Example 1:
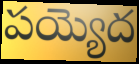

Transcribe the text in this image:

పయ్యెద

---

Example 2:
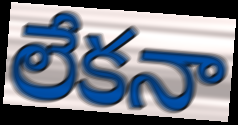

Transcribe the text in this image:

లేకనా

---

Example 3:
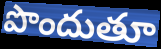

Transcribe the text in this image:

పొందుతూ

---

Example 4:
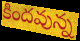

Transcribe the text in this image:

కిందవున్న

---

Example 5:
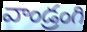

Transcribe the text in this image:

వాండ్రంగి